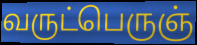
வருட்பெருஞ்